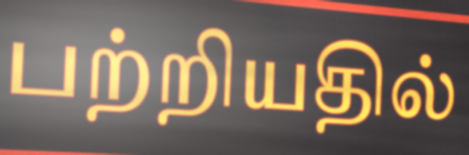
பற்றியதில்